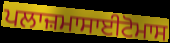
ਪਲਾਜ਼ਮਾਸਾਈਟੋਮਾਸ